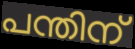
പന്തിന്